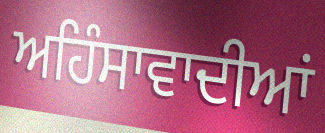
ਅਹਿੰਸਾਵਾਦੀਆਂ